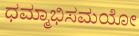
ಧಮ್ಮಾಭಿಸಮಯೋ